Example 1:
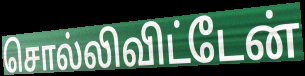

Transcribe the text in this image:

சொல்லிவிட்டேன்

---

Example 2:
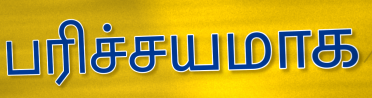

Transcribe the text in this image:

பரிச்சயமாக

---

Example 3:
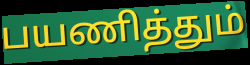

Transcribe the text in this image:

பயணித்தும்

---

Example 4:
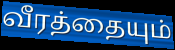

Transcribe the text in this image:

வீரத்தையும்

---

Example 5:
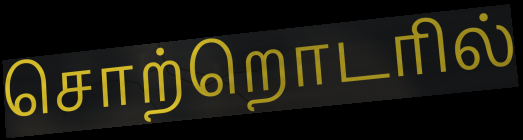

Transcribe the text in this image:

சொற்றொடரில்